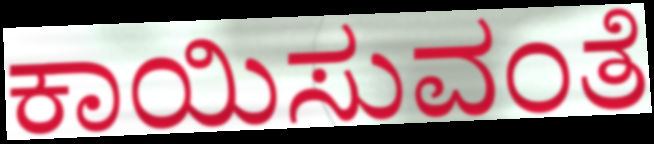
ಕಾಯಿಸುವಂತೆ